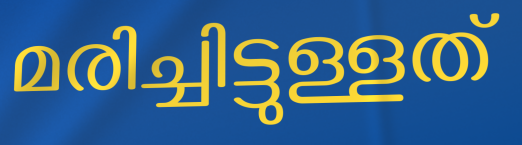
മരിച്ചിട്ടുള്ളത്